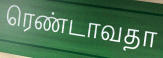
ரெண்டாவதா